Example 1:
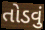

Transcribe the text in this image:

તોડવું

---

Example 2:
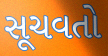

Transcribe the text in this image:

સૂચવતો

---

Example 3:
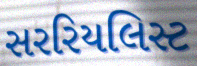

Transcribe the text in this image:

સરરિયલિસ્ટ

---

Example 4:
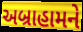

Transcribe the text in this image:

અબ્રાહામને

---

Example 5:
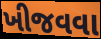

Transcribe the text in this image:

ખીજવવા